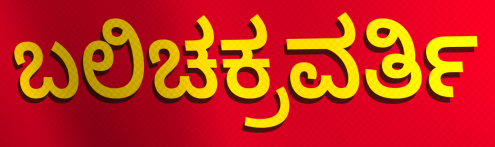
ಬಲಿಚಕ್ರವರ್ತಿ